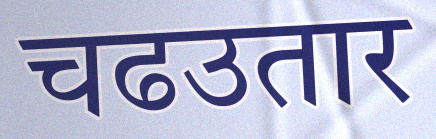
चढउतार